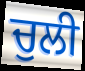
ਚੁਲੀ